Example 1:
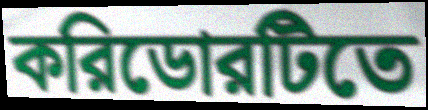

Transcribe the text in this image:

করিডোরটিতে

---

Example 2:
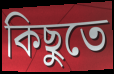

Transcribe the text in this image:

কিছুতে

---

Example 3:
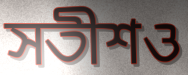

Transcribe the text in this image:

সতীশও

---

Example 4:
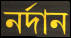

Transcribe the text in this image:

নর্দান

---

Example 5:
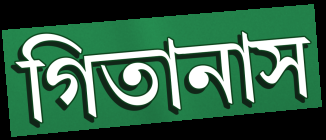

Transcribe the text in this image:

গিতানাস